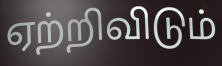
ஏற்றிவிடும்